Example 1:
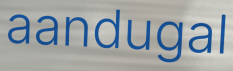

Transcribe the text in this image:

aandugal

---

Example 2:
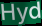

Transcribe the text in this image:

Hyd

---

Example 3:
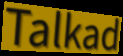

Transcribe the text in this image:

Talkad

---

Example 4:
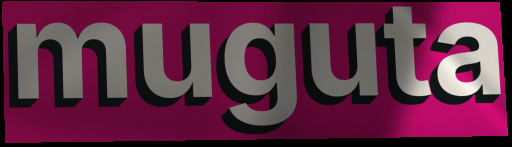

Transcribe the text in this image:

muguta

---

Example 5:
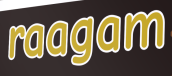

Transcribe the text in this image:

raagam